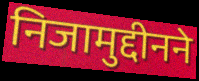
निजामुद्दीनने